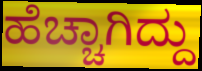
ಹೆಚ್ಚಾಗಿದ್ದು